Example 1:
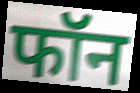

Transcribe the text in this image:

फॉन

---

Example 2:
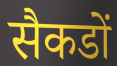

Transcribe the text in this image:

सैकडों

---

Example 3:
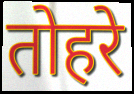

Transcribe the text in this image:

तोहरे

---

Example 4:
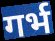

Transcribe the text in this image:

गर्भ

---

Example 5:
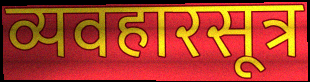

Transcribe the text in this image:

व्यवहारसूत्र